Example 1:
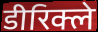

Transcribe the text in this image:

डीरिक्ले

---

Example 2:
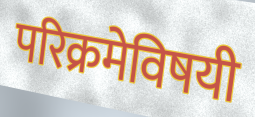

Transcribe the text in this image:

परिक्रमेविषयी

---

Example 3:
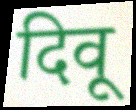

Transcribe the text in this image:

दिवू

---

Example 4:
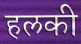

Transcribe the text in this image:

हलकी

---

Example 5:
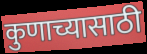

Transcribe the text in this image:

कुणाच्यासाठी